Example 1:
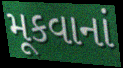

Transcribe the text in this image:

મૂકવાનાં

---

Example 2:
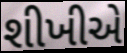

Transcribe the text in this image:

શીખીએ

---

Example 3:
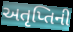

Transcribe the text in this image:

અતૃપ્તિની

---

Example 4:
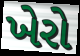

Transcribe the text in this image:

ખેરો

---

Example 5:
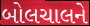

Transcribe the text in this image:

બોલચાલને